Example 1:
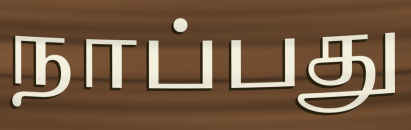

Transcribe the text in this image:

நாப்பது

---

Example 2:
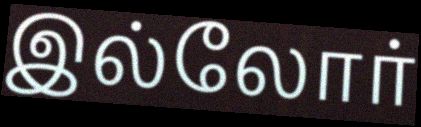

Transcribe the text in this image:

இல்லோர்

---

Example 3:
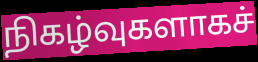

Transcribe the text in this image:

நிகழ்வுகளாகச்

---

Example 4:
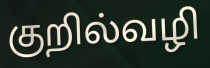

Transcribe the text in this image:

குறில்வழி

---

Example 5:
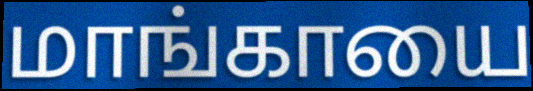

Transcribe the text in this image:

மாங்காயை